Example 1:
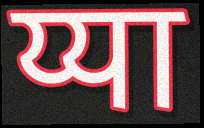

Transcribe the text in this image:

य्या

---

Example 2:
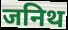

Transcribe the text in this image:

जनिथ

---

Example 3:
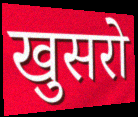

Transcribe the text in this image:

खुसरो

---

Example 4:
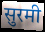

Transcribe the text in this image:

सुरमी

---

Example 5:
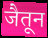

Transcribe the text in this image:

जैतून